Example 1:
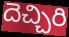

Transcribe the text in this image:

దెచ్చిరి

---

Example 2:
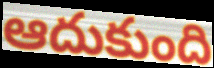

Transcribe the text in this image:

ఆదుకుంది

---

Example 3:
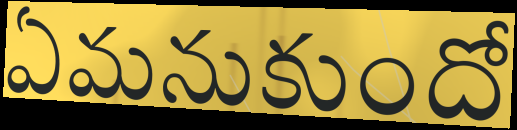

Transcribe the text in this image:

ఏమనుకుందో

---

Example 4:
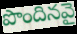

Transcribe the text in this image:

పొందినవై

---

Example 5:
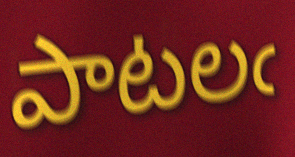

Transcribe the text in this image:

పాటలఁ